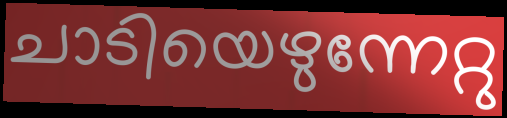
ചാടിയെഴുന്നേറ്റു